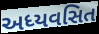
અધ્યવસિત